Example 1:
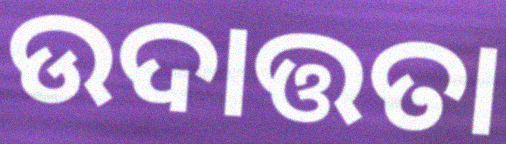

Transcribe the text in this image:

ଉଦାତ୍ତତା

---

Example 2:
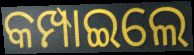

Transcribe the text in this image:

କମ୍ପାଇଲେ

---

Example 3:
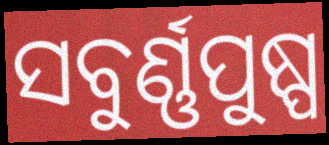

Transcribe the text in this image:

ସବୁର୍ଣ୍ଣପୁଷ୍ପ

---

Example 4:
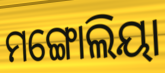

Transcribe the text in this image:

ମଙ୍ଗୋଲିୟା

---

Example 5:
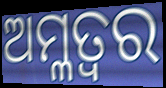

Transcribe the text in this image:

ଅମ୍ଳତ୍ଵର